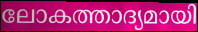
ലോകത്താദ്യമായി